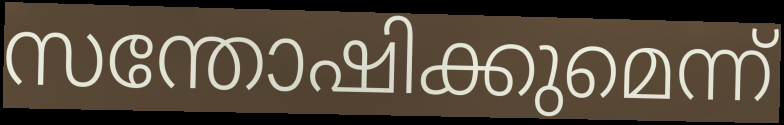
സന്തോഷിക്കുമെന്ന്